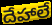
దేహాలే